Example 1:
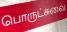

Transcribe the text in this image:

பொருட்சுவை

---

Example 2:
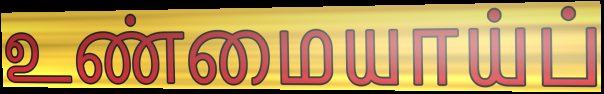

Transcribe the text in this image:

உண்மையாய்ப்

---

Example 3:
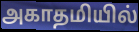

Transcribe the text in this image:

அகாதமியில்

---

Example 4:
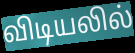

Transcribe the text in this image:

விடியலில்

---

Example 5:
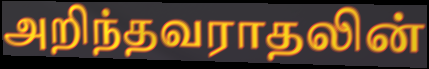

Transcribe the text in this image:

அறிந்தவராதலின்